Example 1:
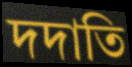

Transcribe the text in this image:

দদাতি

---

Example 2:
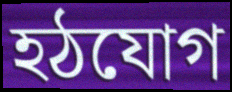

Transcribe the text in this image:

হঠযোগ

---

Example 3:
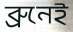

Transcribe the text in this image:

ব্রুনেই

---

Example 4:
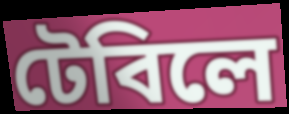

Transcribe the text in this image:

টেবিলে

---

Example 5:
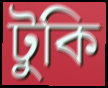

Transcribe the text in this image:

টুকি